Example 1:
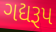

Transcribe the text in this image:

ગદ્યરૂપ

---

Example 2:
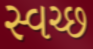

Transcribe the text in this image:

સ્વચ્છ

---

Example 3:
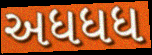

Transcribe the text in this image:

અધધધ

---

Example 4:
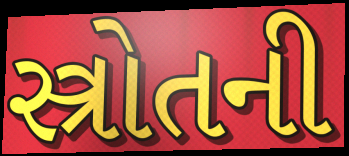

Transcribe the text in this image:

સ્ત્રોતની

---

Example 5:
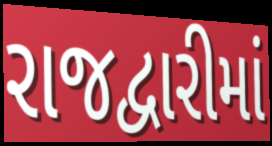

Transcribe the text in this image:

રાજદ્વારીમાં